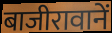
बाजीरावानें